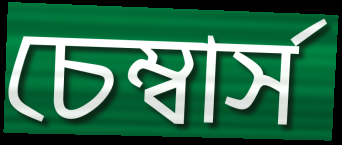
চেম্বার্স